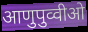
आणुपुव्वीओ